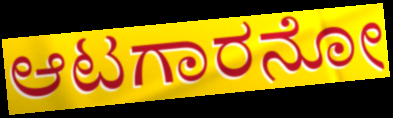
ಆಟಗಾರನೋ